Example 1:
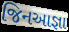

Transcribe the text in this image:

જિનઆજ્ઞા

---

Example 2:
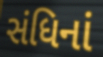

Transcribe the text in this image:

સંધિનાં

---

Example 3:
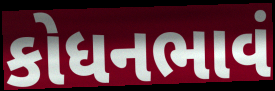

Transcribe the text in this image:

કોધનભાવં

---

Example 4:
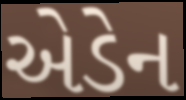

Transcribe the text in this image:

એડેન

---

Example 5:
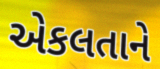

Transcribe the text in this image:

એકલતાને